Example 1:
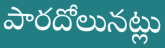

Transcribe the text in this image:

పారదోలునట్లు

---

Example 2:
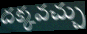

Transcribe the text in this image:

దక్కవచ్చు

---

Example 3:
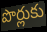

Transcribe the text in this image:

పొర్లుకు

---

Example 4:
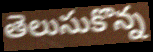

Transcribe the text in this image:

తెలుసుకొన్న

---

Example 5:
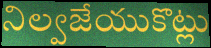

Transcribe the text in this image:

నిల్వజేయుకొట్లు